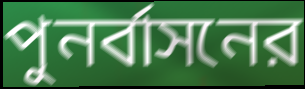
পুনর্বাসনের